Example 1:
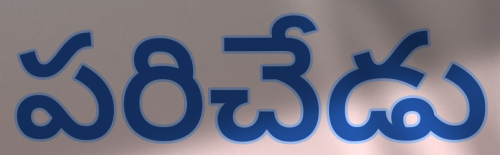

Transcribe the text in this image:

పరిచేడు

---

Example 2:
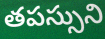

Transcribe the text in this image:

తపస్సుని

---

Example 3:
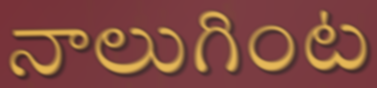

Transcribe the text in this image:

నాలుగింట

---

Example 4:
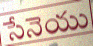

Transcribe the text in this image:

సేనెయు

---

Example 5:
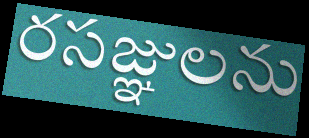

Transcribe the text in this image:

రసజ్ఞులను